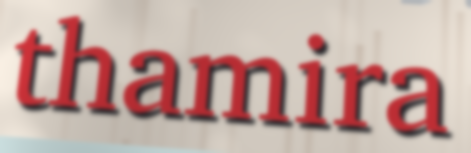
thamira